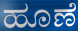
ಹೂಣೆ